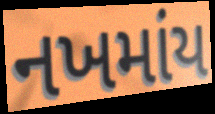
નખમાંય